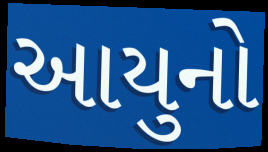
આયુનો